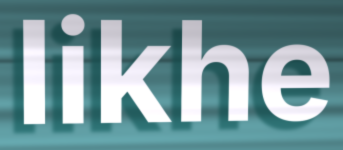
likhe